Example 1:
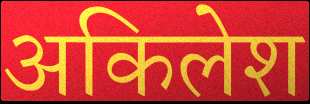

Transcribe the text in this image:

अकिलेश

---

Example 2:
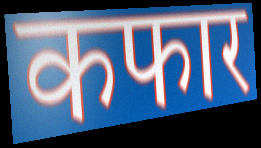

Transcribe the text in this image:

कफार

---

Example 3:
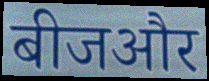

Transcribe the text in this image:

बीजऔर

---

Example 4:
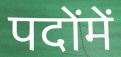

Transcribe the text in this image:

पदोंमें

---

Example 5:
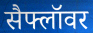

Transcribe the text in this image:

सैफ्लॉवर